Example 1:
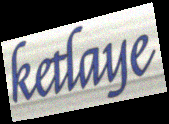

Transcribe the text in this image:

ketlaye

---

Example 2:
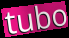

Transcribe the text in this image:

tubo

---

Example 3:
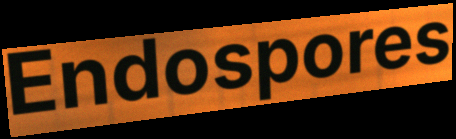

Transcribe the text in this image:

Endospores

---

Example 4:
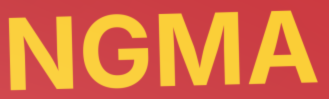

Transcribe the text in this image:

NGMA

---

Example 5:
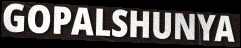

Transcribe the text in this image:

GOPALSHUNYA